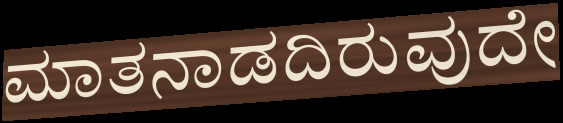
ಮಾತನಾಡದಿರುವುದೇ